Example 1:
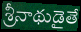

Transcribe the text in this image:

శ్రీనాథుడైతే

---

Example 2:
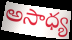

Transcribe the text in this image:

అసాధ్య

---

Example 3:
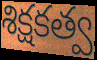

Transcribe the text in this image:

శిక్షకత్వ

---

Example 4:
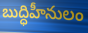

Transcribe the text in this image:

బుద్ధిహీనులం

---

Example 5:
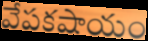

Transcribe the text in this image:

వేపకషాయం